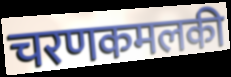
चरणकमलकी